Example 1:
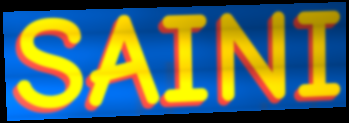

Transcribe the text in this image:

SAINI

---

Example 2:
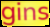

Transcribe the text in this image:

gins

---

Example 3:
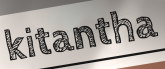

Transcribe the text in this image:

kitantha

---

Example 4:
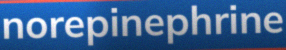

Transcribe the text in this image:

norepinephrine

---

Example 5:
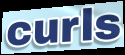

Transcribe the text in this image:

curls